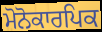
ਮੋਨੋਕਾਰਪਿਕ